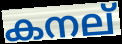
കനല്